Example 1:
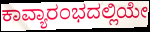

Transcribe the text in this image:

ಕಾವ್ಯಾರಂಭದಲ್ಲಿಯೇ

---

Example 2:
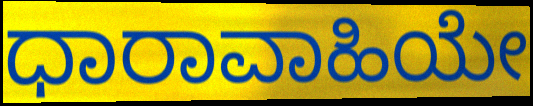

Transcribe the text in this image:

ಧಾರಾವಾಹಿಯೇ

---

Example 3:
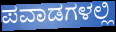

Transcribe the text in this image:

ಪವಾಡಗಳಲ್ಲಿ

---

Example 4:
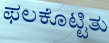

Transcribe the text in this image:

ಫಲಕೊಟ್ಟಿತು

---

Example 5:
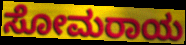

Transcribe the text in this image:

ಸೋಮರಾಯ